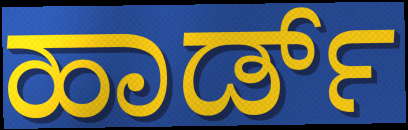
ಹಾರ್ಡ್